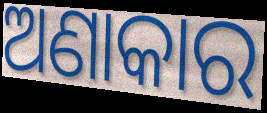
ଅଣାକାର